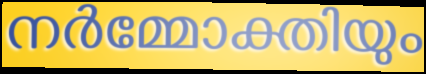
നർമ്മോക്തിയും